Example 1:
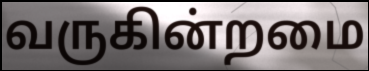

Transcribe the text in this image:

வருகின்றமை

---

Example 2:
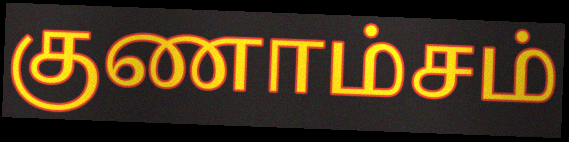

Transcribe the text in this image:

குணாம்சம்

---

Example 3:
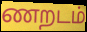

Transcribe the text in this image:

ணறடம்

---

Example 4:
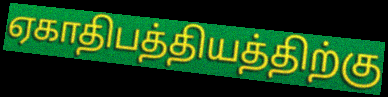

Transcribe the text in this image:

ஏகாதிபத்தியத்திற்கு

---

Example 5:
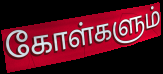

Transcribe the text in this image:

கோள்களும்